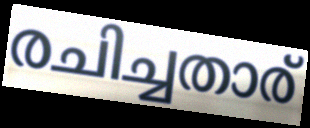
രചിച്ചതാര്